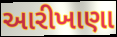
આરીખાણા